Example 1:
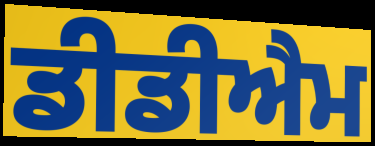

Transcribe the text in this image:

ਡੀਡੀਐਮ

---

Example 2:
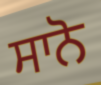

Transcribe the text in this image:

ਸਾਨੋ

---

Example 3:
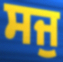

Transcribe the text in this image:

ਸਜੁ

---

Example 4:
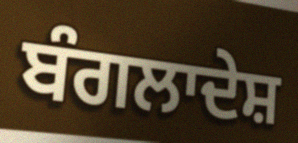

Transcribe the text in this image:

ਬੰਗਲਾਦੇਸ਼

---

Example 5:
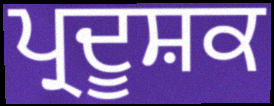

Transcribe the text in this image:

ਪ੍ਰਦੂਸ਼ਕ